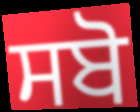
ਸਬੋ